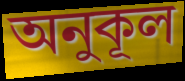
অনুকূল